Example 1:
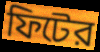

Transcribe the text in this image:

ফিটের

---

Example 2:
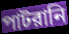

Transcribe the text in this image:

পাটরানি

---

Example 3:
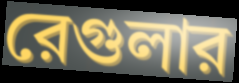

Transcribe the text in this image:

রেগুলার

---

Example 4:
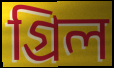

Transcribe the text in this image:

গ্রিল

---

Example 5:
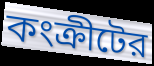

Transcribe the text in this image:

কংক্রীটের